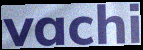
vachi